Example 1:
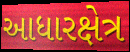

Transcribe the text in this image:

આધારક્ષેત્ર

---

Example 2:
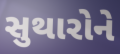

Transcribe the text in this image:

સુથારોને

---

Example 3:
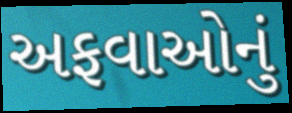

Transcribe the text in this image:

અફવાઓનું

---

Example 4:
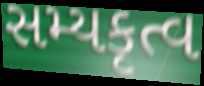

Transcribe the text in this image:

સમ્યકૃત્વ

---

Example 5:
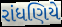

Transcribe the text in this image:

રાંધણિયે